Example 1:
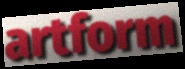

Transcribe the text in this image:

artform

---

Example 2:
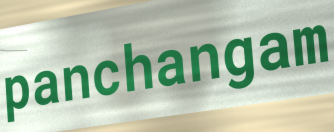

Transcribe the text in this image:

panchangam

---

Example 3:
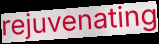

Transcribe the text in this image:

rejuvenating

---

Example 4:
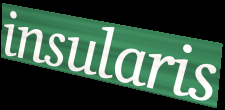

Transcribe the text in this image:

insularis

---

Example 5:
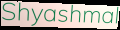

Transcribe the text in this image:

Shyashmal